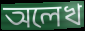
অলেখ